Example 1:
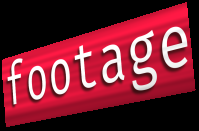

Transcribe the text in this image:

footage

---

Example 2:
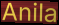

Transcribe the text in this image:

Anila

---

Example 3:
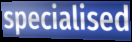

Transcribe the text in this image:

specialised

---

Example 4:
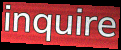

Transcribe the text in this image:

inquire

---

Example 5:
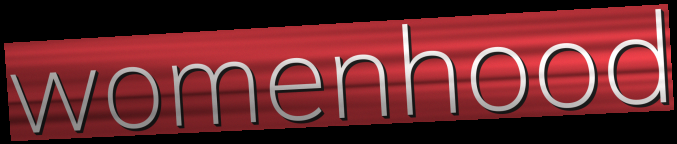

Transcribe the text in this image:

womenhood